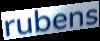
rubens